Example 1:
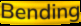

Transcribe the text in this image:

Bending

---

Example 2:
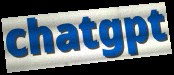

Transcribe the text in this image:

chatgpt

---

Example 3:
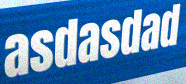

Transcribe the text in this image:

asdasdad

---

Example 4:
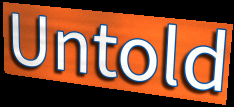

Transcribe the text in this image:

Untold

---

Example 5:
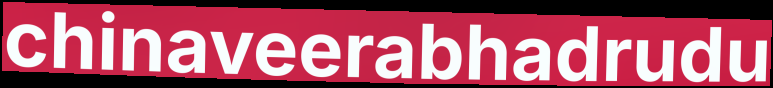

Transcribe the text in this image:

chinaveerabhadrudu